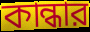
কান্ধার